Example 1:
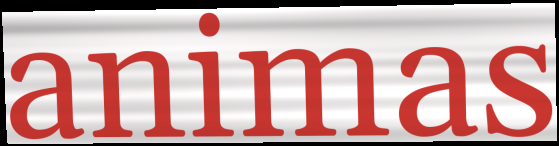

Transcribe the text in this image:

animas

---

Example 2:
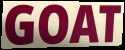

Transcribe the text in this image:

GOAT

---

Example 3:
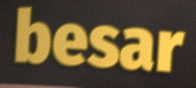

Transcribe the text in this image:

besar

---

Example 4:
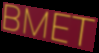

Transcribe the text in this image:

BMET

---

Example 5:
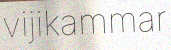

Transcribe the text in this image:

vijikammar